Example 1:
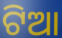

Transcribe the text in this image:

ଟିଆ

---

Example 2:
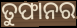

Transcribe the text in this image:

ତୁଫାନର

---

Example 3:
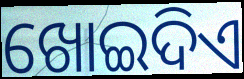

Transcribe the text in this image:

ଖୋଇଦିଏ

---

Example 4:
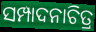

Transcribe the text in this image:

ସମ୍ପାଦନାଚିତ୍ର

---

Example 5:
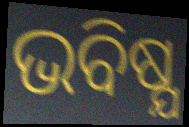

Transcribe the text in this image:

ଭବିଷ୍ଯ